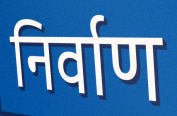
निर्वाण